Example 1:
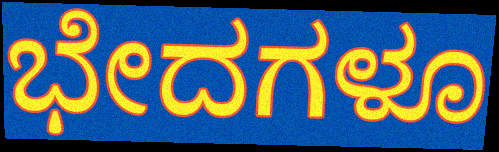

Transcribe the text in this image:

ಭೇದಗಳೂ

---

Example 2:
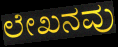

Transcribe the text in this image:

ಲೇಖನವು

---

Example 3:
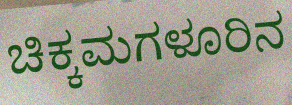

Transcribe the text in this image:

ಚಿಕ್ಕಮಗಳೂರಿನ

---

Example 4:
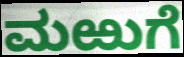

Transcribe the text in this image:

ಮಱುಗೆ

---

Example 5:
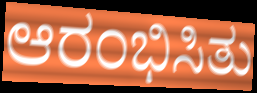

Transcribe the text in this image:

ಆರಂಭಿಸಿತು